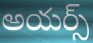
అయర్స్